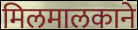
मिलमालकाने